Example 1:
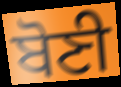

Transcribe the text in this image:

ਬੋਣੀ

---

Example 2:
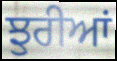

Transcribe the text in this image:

ਝੁਰੀਆਂ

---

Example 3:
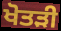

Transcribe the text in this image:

ਖੋਤੜੀ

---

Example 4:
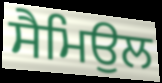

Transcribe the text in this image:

ਸੈਮਿਉਲ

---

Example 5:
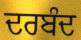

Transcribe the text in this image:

ਦਰਬੰਦ